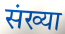
संख्‍या